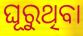
ଘୂରୁଥିବା